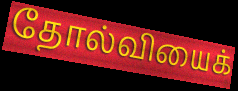
தோல்வியைக்